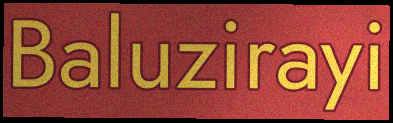
Baluzirayi